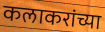
कलाकरांच्या